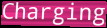
Charging